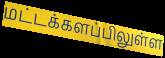
மட்டக்களப்பிலுள்ள